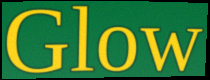
Glow